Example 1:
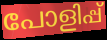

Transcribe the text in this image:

പോളിപ്പ്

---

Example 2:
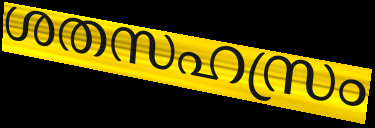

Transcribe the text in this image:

ശതസഹസ്രം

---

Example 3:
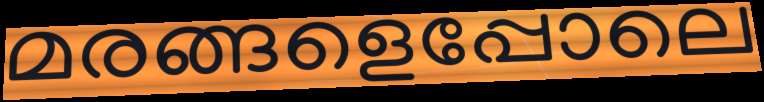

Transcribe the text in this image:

മരങ്ങളെപ്പോലെ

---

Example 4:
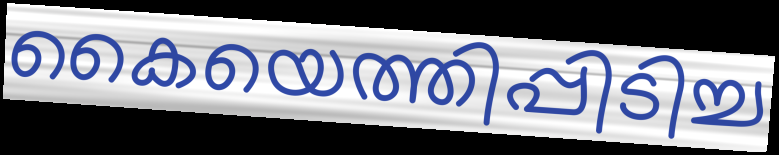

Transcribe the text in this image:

കൈയെത്തിപ്പിടിച്ച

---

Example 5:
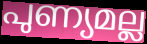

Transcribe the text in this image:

പുണ്യമല്ല